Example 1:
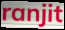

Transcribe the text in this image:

ranjit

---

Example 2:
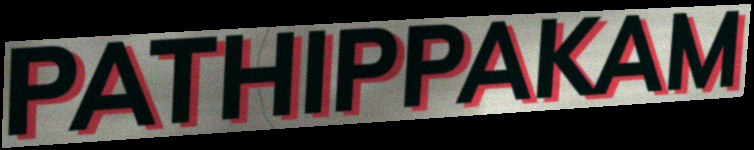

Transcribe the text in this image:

PATHIPPAKAM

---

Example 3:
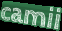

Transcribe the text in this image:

camii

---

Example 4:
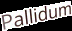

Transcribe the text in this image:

Pallidum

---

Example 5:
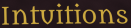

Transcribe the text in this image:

Intuitions